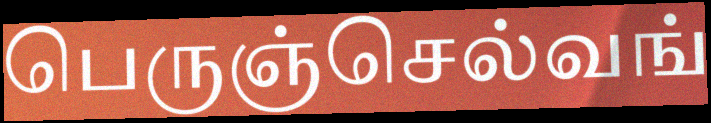
பெருஞ்செல்வங்